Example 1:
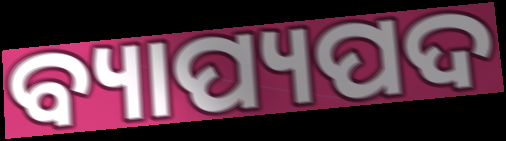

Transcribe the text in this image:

ବ୍ୟାପ୍ୟପଦ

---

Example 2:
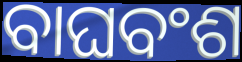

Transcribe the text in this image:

ବାଘବଂଶ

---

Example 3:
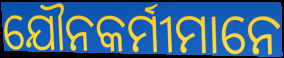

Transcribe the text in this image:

ଯୌନକର୍ମୀମାନେ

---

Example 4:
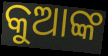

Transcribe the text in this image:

କୁଆଙ୍କ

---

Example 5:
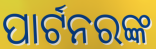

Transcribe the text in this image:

ପାର୍ଟନରଙ୍କ